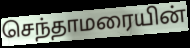
செந்தாமரையின்